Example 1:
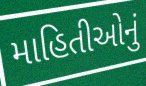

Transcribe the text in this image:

માહિતીઓનું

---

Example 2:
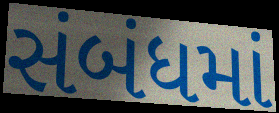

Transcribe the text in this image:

સંબંધમાં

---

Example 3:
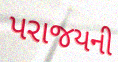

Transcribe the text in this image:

પરાજયની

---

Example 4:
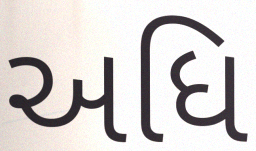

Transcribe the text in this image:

અધિ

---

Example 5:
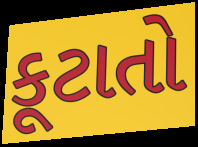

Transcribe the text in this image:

કૂટાતો